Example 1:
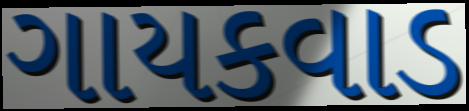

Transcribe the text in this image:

ગાયકવાડ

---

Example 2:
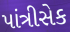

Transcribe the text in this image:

પાંત્રીસેક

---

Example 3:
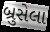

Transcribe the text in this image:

બ્રુસેલા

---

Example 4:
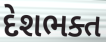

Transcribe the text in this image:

દેશભક્ત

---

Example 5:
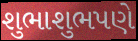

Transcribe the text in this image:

શુભાશુભપણે